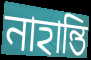
নাহান্তি